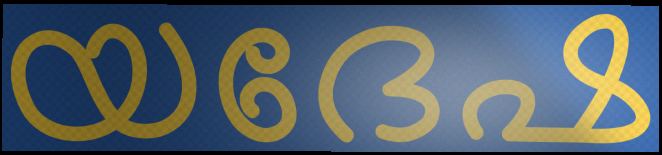
യദേഷ